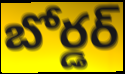
బోర్డర్